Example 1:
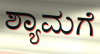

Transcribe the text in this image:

ಶ್ಯಾಮಗೆ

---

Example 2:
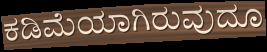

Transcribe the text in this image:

ಕಡಿಮೆಯಾಗಿರುವುದೂ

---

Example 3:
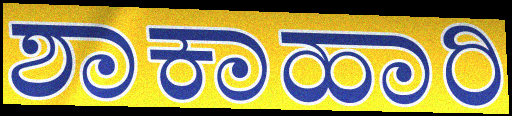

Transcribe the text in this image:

ಶಾಕಾಹಾರಿ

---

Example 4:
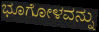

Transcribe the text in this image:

ಭೂಗೋಳವನ್ನು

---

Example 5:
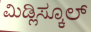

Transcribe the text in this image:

ಮಿಡ್ಲಿಸ್ಕೂಲ್